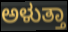
ಅಳುತ್ತಾ